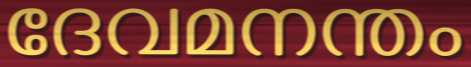
ദേവമനന്തം